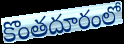
కొంతదూరంలో